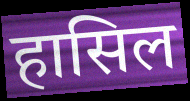
हासिल